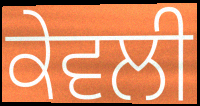
ਕੇਵਲੀ